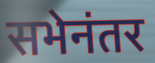
सभेनंतर